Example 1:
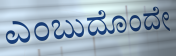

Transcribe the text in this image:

ಎಂಬುದೊಂದೇ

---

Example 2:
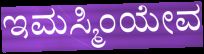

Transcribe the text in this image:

ಇಮಸ್ಮಿಂಯೇವ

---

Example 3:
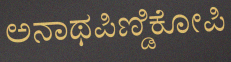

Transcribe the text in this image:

ಅನಾಥಪಿಣ್ಡಿಕೋಪಿ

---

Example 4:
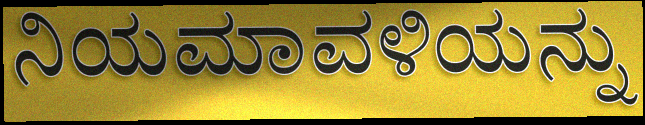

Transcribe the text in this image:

ನಿಯಮಾವಳಿಯನ್ನು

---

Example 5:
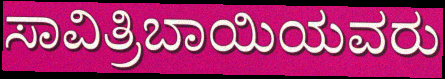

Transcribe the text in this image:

ಸಾವಿತ್ರಿಬಾಯಿಯವರು